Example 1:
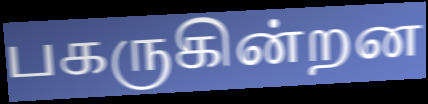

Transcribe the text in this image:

பகருகின்றன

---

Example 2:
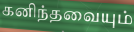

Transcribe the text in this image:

கனிந்தவையும்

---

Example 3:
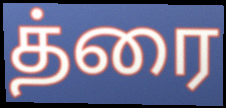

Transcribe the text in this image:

த்ரை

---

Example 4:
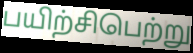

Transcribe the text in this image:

பயிற்சிபெற்று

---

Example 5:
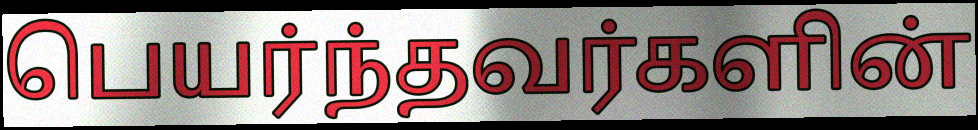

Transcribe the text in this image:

பெயர்ந்தவர்களின்